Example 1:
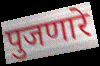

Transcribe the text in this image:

पुजणारे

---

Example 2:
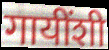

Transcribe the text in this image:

गायींशी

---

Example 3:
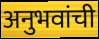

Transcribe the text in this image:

अनुभवांची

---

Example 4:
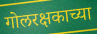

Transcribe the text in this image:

गोलरक्षकाच्या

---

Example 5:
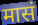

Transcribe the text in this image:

मासं